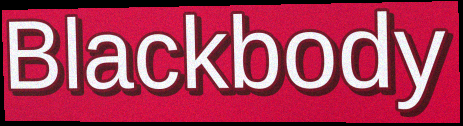
Blackbody